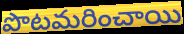
పొటమరించాయి